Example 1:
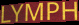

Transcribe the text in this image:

LYMPH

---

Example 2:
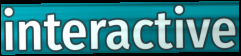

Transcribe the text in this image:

interactive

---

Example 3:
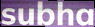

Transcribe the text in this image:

subha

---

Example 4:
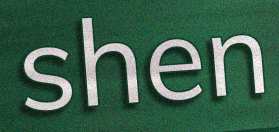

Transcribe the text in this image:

shen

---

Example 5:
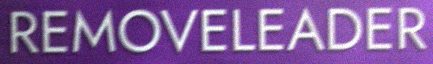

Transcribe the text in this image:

REMOVELEADER